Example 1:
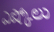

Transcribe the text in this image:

ఎష్కోలు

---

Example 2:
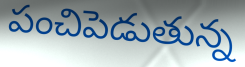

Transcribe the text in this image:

పంచిపెడుతున్న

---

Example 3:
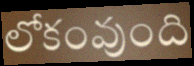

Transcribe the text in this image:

లోకంవుంది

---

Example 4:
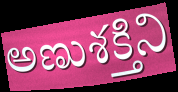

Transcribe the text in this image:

అణుశక్తిని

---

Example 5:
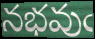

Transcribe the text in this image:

నభవుఁ